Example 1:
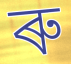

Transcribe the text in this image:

ৰু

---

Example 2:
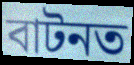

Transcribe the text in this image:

বাটনত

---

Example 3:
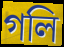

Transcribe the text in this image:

গলি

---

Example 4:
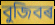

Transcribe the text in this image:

বুজিবৰ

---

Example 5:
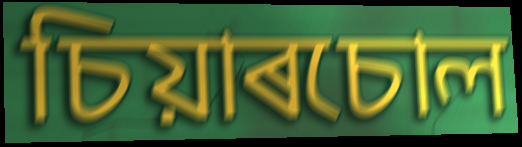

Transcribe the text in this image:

চিয়াৰচোল